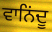
ਵਾਨਿਂਦੂ